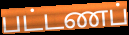
பட்டணப்